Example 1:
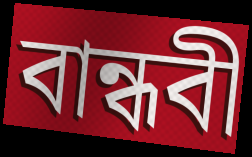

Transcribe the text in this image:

বান্ধবী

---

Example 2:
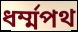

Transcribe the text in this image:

ধর্ম্মপথ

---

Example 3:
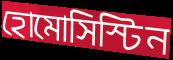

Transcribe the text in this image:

হোমোসিস্টিন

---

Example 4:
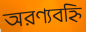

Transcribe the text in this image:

অরণ্যবহ্নি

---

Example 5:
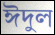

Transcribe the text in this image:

ঈদুল